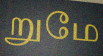
றுமே